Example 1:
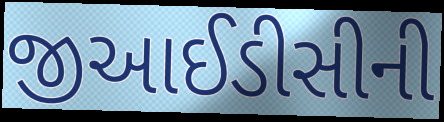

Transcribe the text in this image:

જીઆઈડીસીની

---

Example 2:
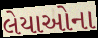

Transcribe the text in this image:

લેયાઓના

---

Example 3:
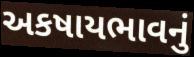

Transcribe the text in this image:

અકષાયભાવનું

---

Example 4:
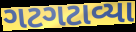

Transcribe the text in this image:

ગટગટાવ્યા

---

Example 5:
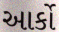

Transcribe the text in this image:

આર્કો